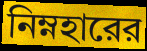
নিম্নহারের